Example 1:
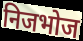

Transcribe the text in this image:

निजभोज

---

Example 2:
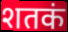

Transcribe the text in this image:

शतकं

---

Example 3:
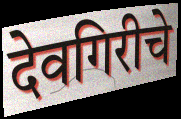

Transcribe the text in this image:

देवगिरीचे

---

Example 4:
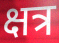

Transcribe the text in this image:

क्षत्र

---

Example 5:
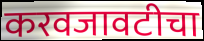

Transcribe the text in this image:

करवजावटीचा